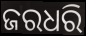
ଜରଧରି